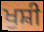
ਖੁਸ਼ੀ